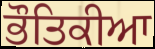
ਭੌਤਿਕੀਆ